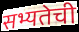
सभ्यतेची